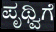
ಪೃಥ್ವಿಗೆ